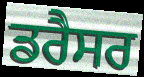
ਡਰੈਸਰ